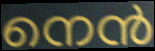
നെൻ